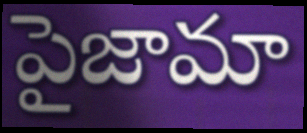
పైజామా